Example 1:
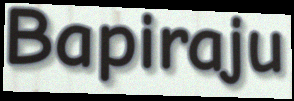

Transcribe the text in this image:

Bapiraju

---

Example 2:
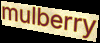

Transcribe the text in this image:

mulberry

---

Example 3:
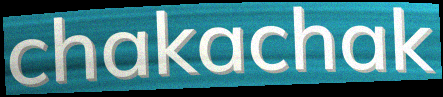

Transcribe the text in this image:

chakachak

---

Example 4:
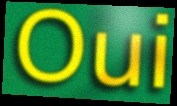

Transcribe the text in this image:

Oui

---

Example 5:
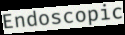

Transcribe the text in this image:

Endoscopic